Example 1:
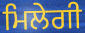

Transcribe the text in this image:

ਮਿਲੇਗੀ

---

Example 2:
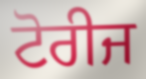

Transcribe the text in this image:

ਟੋਰੀਜ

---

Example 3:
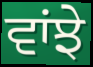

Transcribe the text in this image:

ਵਾਂਝੇ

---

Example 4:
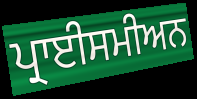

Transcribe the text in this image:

ਪ੍ਰਾਈਸਮੀਅਨ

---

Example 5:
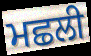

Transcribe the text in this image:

ਮਛਲੀ